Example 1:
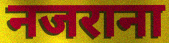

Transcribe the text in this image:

नजराना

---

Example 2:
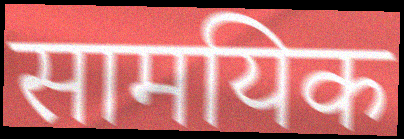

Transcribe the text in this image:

सामयिक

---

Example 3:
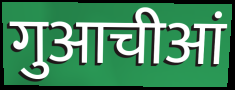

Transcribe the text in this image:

गुआचीआं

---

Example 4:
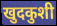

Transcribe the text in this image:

खुदकुशी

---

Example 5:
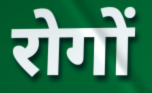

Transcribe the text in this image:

रोगों